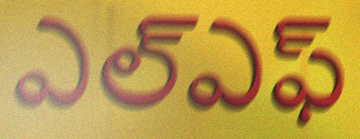
ఎల్ఎఫ్